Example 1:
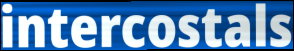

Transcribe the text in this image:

intercostals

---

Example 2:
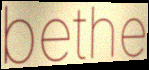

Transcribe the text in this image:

bethe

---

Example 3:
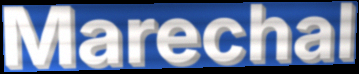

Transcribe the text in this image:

Marechal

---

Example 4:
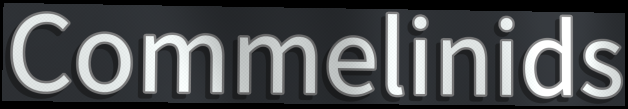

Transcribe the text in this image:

Commelinids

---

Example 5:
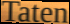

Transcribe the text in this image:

Taten